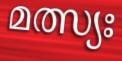
മത്സ്യഃ